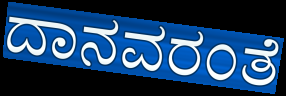
ದಾನವರಂತೆ